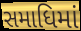
સમાધિમાં